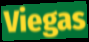
Viegas